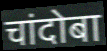
चांदोबा